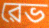
ৱেভ